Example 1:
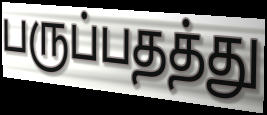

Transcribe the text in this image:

பருப்பதத்து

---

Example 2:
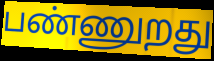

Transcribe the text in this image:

பண்ணுறது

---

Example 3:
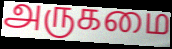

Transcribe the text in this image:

அருகமை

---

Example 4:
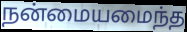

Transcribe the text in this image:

நன்மையமைந்த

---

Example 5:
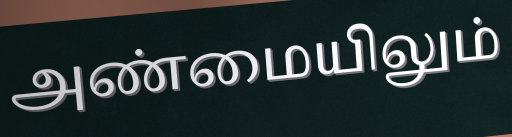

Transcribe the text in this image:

அண்மையிலும்